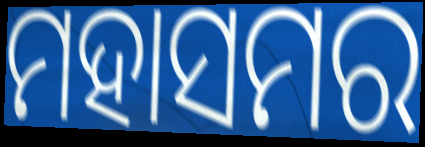
ମହାସମର